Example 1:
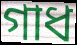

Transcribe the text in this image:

গাধ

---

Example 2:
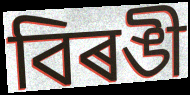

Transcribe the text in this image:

বিৰঙী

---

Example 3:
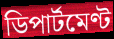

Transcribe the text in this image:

ডিপাৰ্টমেণ্ট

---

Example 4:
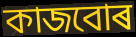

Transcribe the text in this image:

কাজবোৰ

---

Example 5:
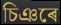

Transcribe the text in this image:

চিঞৰে